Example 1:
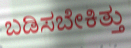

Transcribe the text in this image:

ಬಡಿಸಬೇಕಿತ್ತು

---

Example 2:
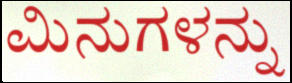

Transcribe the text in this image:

ಮಿನುಗಳನ್ನು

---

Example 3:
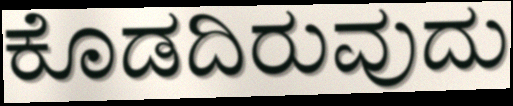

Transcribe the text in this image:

ಕೊಡದಿರುವುದು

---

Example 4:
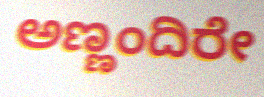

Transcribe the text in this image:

ಅಣ್ಣಂದಿರೇ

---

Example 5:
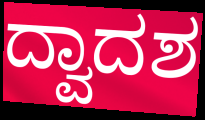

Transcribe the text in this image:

ದ್ವಾದಶ